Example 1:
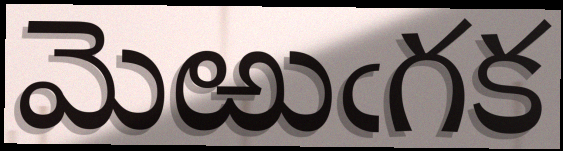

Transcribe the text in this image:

మెఱుఁగక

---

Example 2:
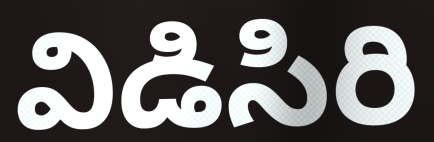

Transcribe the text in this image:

విడిసిరి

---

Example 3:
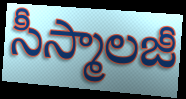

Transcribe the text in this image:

సీస్మాలజీ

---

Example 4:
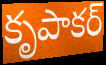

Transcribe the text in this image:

కృపాకర్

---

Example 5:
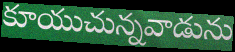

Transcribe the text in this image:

కూయుచున్నవాడును